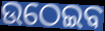
ଉଠେଇବ